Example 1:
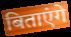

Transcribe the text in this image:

बिताएंगे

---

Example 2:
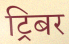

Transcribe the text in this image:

ट्रिबर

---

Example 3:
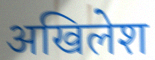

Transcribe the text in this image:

अखिलेश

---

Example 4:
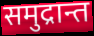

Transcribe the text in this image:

समुद्रान्त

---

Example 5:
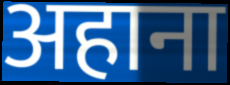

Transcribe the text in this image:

अहाना